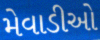
મેવાડીઓ